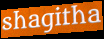
shagitha